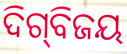
ଦିଗ୍‍ବିଜୟ